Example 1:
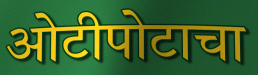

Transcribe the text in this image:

ओटीपोटाचा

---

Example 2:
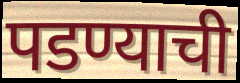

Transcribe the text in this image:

पडण्याची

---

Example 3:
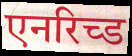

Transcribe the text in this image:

एनरिच्ड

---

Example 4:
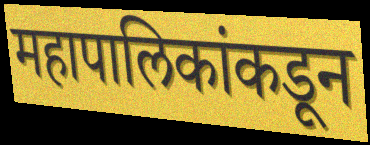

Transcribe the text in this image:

महापालिकांकडून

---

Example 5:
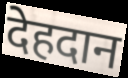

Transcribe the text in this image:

देहदान